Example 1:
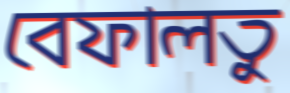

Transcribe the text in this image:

বেফালতু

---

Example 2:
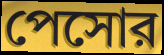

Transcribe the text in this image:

পেসোর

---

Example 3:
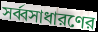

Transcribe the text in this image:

সর্ব্বসাধারণের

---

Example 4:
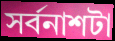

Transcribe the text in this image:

সর্বনাশটা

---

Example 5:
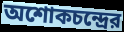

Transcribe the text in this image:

অশোকচন্দ্রের